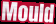
Mould